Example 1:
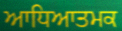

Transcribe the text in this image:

ਆਧਿਆਤਮਕ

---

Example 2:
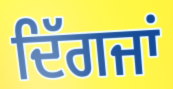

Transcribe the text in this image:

ਦਿੱਗਜਾਂ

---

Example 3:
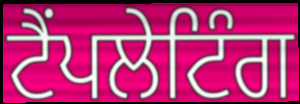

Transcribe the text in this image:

ਟੈਂਪਲੇਟਿੰਗ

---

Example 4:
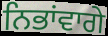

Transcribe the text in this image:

ਨਿਭਾਂਵਾਗੇ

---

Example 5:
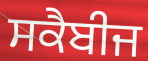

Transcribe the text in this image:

ਸਕੈਬੀਜ